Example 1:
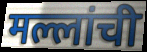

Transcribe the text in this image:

मल्लांची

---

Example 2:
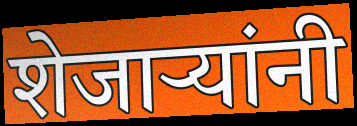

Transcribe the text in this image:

शेजाऱ्यांनी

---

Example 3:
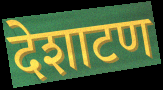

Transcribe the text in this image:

देशाटण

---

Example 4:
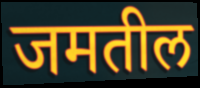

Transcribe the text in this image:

जमतील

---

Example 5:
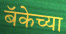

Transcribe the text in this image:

बॅकेच्या